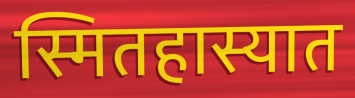
स्मितहास्यात